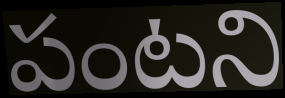
పంటని